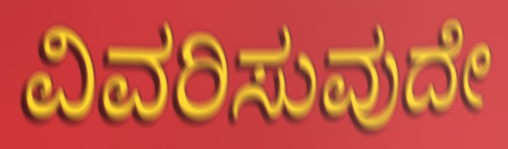
ವಿವರಿಸುವುದೇ